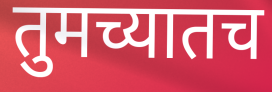
तुमच्यातच